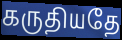
கருதியதே